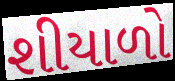
શીયાળો